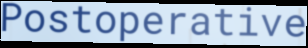
Postoperative